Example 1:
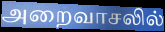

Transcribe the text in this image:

அறைவாசலில்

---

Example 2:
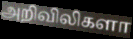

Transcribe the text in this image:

அறிவிலிகளா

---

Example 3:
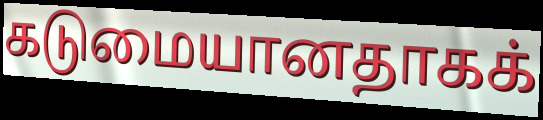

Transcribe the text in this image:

கடுமையானதாகக்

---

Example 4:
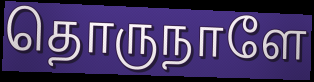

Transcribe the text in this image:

தொருநாளே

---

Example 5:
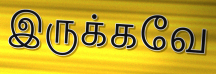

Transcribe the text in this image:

இருக்கவே